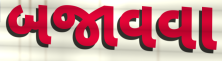
બજાવવા